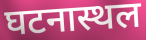
घटनास्थल